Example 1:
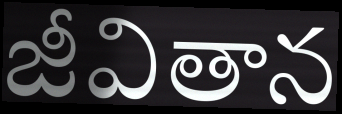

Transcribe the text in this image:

జీవితాన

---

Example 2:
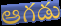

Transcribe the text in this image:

ఆగడు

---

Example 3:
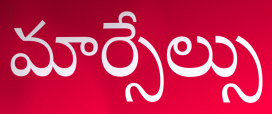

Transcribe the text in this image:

మార్సేల్సు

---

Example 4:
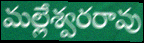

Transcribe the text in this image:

మల్లేశ్వరరావు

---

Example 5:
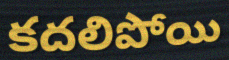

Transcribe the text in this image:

కదలిపోయి